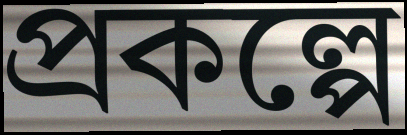
প্রকল্পে